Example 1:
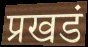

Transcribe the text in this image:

प्रखडं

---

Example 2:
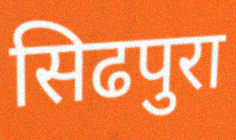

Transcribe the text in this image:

सिढपुरा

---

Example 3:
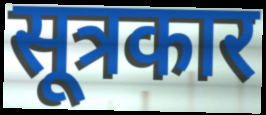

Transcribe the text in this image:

सूत्रकार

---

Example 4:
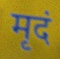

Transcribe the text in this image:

मृदं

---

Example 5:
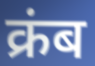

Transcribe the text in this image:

क्रंब